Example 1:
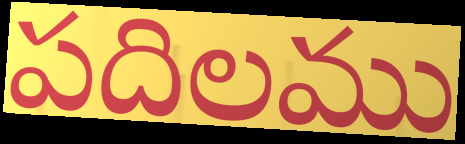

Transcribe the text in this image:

పదిలము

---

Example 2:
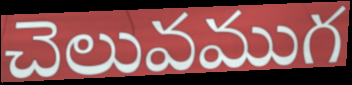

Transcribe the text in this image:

చెలువముగ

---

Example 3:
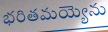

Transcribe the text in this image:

భరితమయ్యెను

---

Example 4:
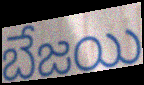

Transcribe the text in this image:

బేజయి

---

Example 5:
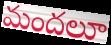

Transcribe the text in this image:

మందలూ